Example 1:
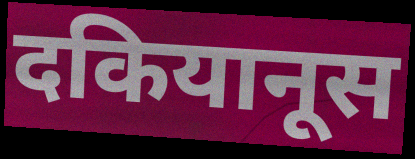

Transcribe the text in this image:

दकियानूस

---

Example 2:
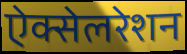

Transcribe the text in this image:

ऐक्सेलरेशन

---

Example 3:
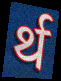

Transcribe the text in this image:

र्थ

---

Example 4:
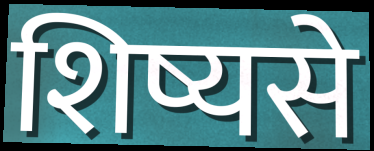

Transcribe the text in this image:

शिष्यसे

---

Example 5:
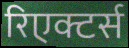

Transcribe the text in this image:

रिएक्टर्स